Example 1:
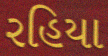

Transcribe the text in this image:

રહિયા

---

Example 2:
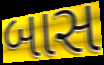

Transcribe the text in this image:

બાસ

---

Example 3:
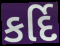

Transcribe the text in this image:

કર્દિ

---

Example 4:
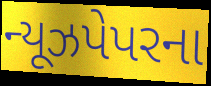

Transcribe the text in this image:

ન્યૂઝપેપરના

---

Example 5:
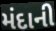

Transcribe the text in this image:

મંદાની